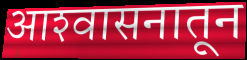
आश्वासनातून